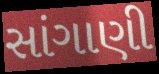
સાંગાણી